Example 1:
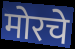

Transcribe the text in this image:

मोरचे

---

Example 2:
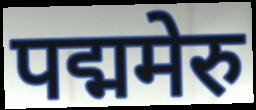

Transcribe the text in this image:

पद्ममेरु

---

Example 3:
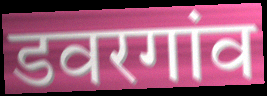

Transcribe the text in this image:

डवरगांव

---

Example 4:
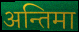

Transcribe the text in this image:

अन्तिमा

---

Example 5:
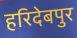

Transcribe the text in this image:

हरिदेबपुर